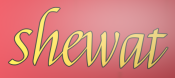
shewat